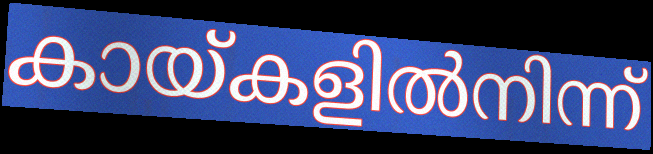
കായ്കളിൽനിന്ന്